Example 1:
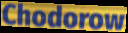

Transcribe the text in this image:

Chodorow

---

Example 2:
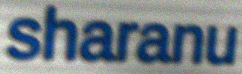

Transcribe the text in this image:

sharanu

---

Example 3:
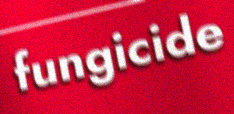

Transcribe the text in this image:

fungicide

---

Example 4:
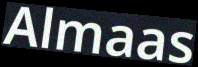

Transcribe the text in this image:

Almaas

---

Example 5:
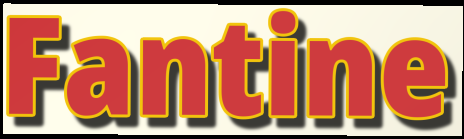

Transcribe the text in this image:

Fantine